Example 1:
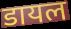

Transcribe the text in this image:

डायल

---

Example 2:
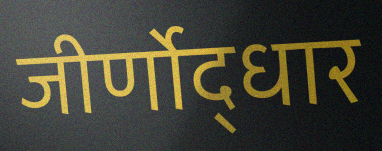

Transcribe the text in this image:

जीर्णोद्धार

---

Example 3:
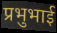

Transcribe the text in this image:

प्रभुभाई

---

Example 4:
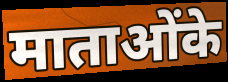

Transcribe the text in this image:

माताओंके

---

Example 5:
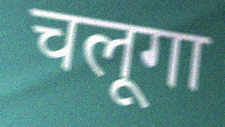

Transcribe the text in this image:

चलूगा